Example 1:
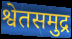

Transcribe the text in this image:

श्वेतसमुद्र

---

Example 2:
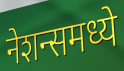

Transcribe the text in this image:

नेशन्समध्ये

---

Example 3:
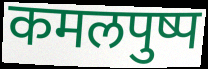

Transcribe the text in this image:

कमलपुष्प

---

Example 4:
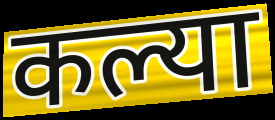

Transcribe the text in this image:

कल्या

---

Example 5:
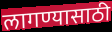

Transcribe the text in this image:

लागण्यासाठी